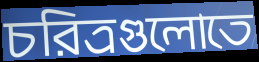
চরিত্রগুলোতে